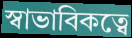
স্বাভাবিকত্বে